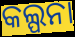
କଲ୍ପନା